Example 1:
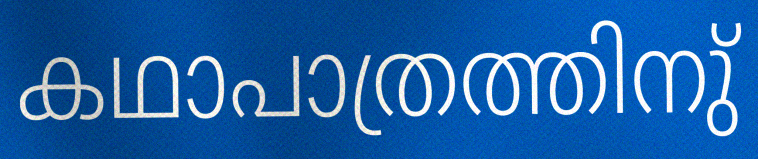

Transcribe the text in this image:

കഥാപാത്രത്തിനു്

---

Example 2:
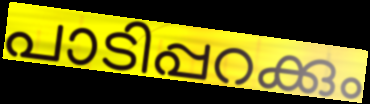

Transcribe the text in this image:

പാടിപ്പറക്കും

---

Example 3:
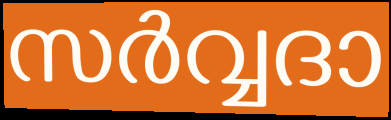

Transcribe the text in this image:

സർവ്വദാ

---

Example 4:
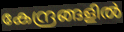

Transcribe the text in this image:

കേന്ദ്രങ്ങളിൽ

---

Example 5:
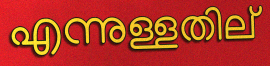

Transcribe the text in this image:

എന്നുള്ളതില്